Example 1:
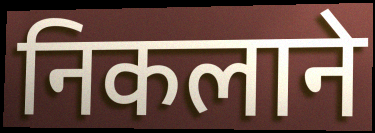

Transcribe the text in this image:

निकलाने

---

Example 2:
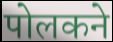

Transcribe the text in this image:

पोलकने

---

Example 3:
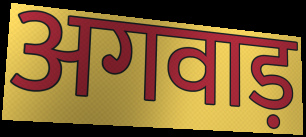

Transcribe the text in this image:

अगवाड़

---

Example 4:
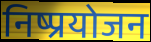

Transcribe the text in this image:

निष्प्रयोजन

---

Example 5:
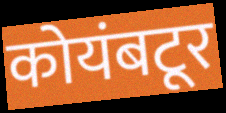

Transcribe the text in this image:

कोयंबटूर